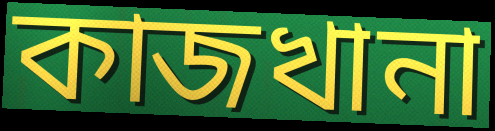
কাজখানা